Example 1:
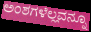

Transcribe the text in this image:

ಅಂಶಗಳೆಲ್ಲವನ್ನೂ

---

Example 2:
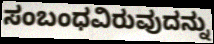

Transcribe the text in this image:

ಸಂಬಂಧವಿರುವುದನ್ನು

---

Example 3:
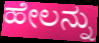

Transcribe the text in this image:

ಹೇಲನ್ನು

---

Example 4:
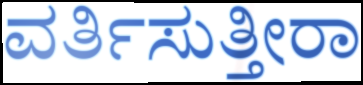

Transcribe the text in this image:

ವರ್ತಿಸುತ್ತೀರಾ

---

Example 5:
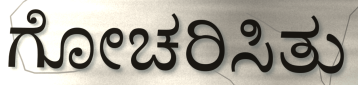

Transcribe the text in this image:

ಗೋಚರಿಸಿತು